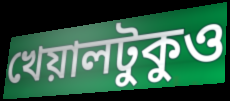
খেয়ালটুকুও